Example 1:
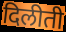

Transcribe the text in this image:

दिलीती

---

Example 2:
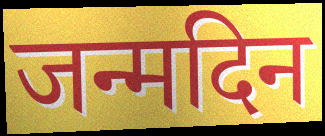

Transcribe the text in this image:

जन्मदिन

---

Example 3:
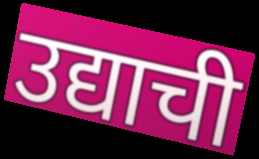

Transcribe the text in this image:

उद्याची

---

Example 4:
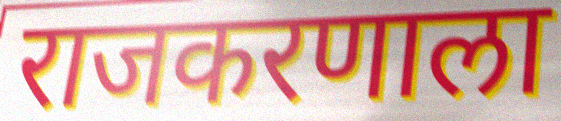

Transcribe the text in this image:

राजकरणाला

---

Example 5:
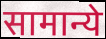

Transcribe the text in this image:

सामान्ये